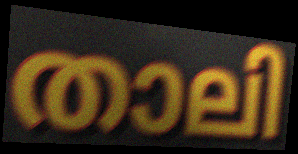
താലി